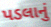
પડલાનું